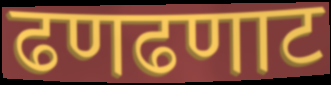
ढणढणाट